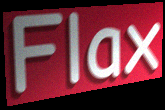
Flax